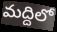
మద్దిలో